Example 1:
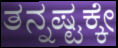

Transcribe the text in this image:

ತನ್ನಷ್ಟಕ್ಕೇ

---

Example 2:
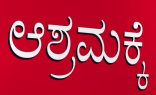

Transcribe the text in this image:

ಆಶ್ರಮಕ್ಕೆ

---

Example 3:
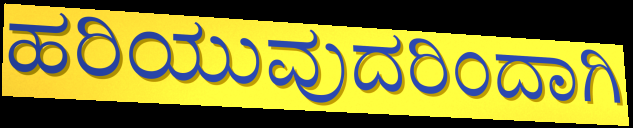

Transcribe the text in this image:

ಹರಿಯುವುದರಿಂದಾಗಿ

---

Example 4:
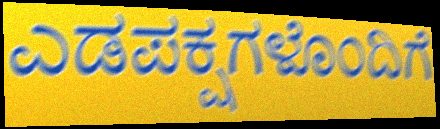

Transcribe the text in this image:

ಎಡಪಕ್ಷಗಳೊಂದಿಗೆ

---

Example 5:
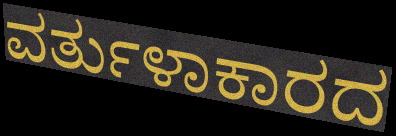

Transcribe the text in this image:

ವರ್ತುಳಾಕಾರದ